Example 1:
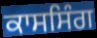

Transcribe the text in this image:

ਕਾਸਸਿੰਗ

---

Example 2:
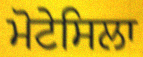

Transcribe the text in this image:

ਮੋਟੇਸਿਲਾ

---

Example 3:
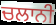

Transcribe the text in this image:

ਚਲਾਨੀ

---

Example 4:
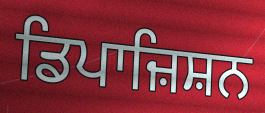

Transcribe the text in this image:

ਡਿਪਾਜ਼ਿਸ਼ਨ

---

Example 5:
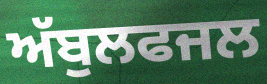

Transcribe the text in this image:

ਅੱਬੁਲਫਜਲ